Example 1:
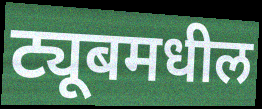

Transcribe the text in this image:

ट्यूबमधील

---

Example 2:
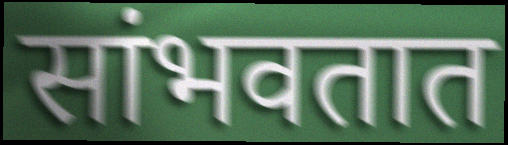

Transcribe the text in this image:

सांभवतात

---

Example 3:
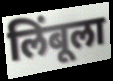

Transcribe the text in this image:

लिंबूला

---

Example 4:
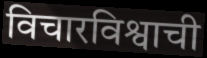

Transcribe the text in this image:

विचारविश्वाची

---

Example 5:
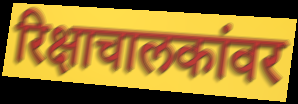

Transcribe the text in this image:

रिक्षाचालकांवर